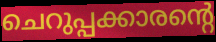
ചെറുപ്പക്കാരന്റെ